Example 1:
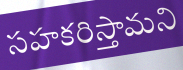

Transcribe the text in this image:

సహకరిస్తామని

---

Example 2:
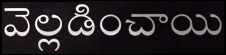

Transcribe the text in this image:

వెల్లడించాయి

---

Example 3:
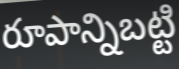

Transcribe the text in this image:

రూపాన్నిబట్టి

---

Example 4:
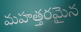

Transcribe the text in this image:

మహత్తరమైన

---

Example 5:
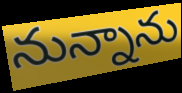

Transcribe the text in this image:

నున్నాను